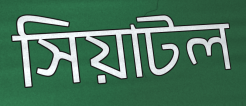
সিয়াটল